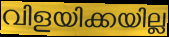
വിളയിക്കയില്ല